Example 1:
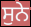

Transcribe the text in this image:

ਸੁਨੇ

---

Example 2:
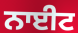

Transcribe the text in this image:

ਨਾਈਟ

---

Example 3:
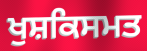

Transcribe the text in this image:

ਖੁਸ਼ਕਿਸਮਤ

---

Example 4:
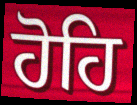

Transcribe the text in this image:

ਹੋਹਿ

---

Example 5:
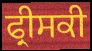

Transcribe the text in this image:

ਫ੍ਰੀਸਕੀ